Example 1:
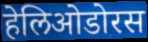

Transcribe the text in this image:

हेलिओडोरस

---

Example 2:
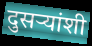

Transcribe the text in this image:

दुसर्‍यांशी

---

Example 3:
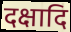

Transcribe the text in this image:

दक्षादि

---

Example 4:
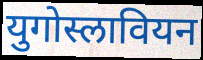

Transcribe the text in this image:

युगोस्लावियन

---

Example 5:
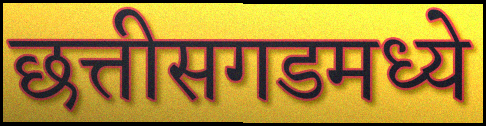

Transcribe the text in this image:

छत्तीसगडमध्ये